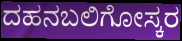
ದಹನಬಲಿಗೋಸ್ಕರ